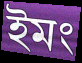
ইমং